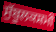
ਸੁੱਬੂਲਕਸ਼ਮੀ